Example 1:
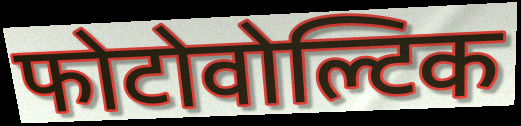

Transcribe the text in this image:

फोटोवोल्टिक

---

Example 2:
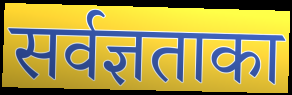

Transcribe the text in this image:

सर्वज्ञताका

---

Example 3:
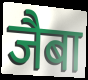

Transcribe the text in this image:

जैबा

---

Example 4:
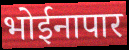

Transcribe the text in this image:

भोईनापार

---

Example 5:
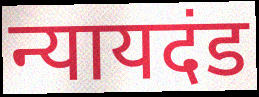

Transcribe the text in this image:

न्यायदंड